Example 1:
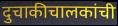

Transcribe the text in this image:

दुचाकीचालकांची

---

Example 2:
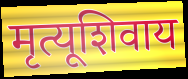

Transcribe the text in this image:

मृत्यूशिवाय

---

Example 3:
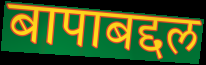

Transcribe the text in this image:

बापाबद्दल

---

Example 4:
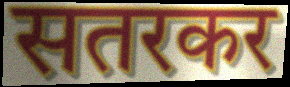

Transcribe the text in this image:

सतरकर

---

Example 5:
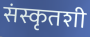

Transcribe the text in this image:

संस्कृतशी